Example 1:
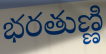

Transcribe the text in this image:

భరతుణ్ణి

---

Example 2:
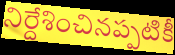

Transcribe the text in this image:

నిర్దేశించినప్పటికీ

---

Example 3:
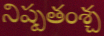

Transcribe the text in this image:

నిష్పతంశ్చ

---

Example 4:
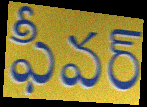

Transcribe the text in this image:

ఫీవర్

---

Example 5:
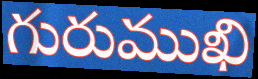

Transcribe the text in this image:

గురుముఖి